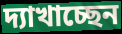
দ্যাখাচ্ছেন